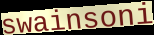
swainsoni